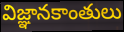
విజ్ఞానకాంతులు